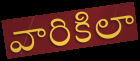
వారికిలా